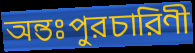
অন্তঃপুরচারিণী